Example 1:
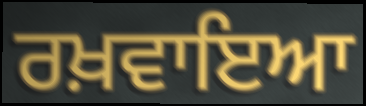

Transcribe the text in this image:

ਰਖ਼ਵਾਇਆ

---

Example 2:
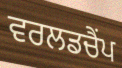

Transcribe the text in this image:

ਵਰਲਡਚੈਂਪ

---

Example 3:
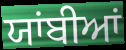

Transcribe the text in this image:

ਯਾਂਬੀਆਂ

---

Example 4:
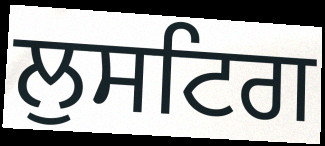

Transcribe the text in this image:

ਲੁਸਟਿਗ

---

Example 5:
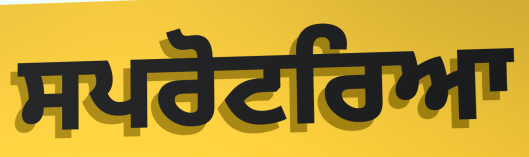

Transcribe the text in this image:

ਸਪਰੋਟਰਿਆ